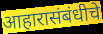
आहारासंबंधीचे